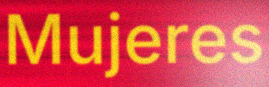
Mujeres